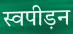
स्वपीड़न